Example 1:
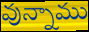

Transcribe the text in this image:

వున్నాము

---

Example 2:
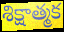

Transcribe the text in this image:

శిక్షాత్మక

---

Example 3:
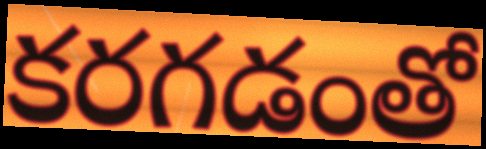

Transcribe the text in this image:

కరగడంతో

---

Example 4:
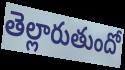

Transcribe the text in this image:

తెల్లారుతుందో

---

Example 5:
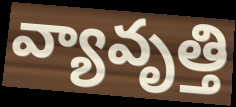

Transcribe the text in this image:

వ్యావృత్తి